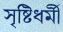
সৃষ্টিধর্মী